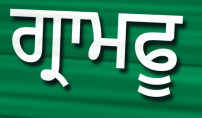
ਗ੍ਰਾਮਫੂ